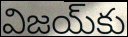
విజయ్‌కు